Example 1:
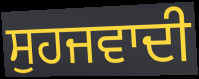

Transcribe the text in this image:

ਸੁਹਜਵਾਦੀ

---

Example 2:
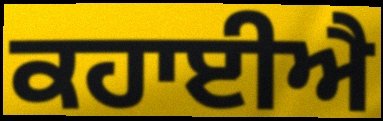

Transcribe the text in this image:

ਕਹਾਈਐ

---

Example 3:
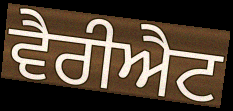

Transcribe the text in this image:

ਵੈਰੀਐਟ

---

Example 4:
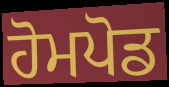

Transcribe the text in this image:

ਹੋਮਪੋਡ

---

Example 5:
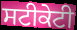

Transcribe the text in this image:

ਸਟੀਕੇਟੀ